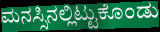
ಮನಸ್ಸಿನಲ್ಲಿಟ್ಟುಕೊಂಡು